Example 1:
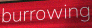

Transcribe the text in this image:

burrowing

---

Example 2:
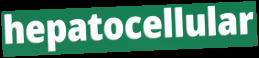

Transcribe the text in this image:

hepatocellular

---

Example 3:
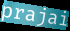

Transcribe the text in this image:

prajai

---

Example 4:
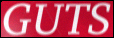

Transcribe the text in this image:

GUTS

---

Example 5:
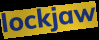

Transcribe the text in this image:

lockjaw